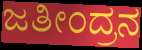
ಜತೀಂದ್ರನ